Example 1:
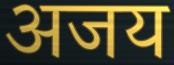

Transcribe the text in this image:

अजय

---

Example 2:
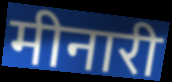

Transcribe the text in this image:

मीनारी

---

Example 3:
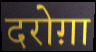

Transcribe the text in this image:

दरोग़ा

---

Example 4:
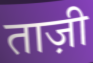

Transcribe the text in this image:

ताज़ी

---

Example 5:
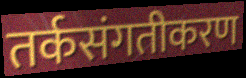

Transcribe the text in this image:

तर्कसंगतीकरण